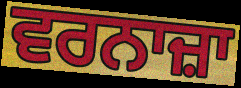
ਵਰਨਾਜ਼ਾ